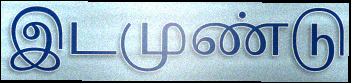
இடமுண்டு